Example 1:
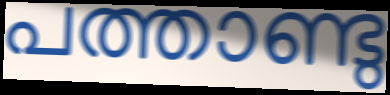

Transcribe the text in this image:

പത്താണ്ടു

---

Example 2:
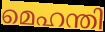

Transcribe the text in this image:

മെഹന്തി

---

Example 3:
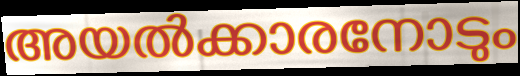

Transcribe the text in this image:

അയൽക്കാരനോടും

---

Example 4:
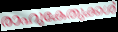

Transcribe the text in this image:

രാഹുകേതുക്കൾ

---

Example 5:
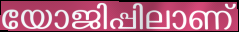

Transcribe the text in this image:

യോജിപ്പിലാണ്